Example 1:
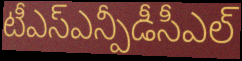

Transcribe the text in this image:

టీఎస్ఎన్పీడీసీఎల్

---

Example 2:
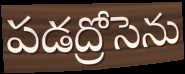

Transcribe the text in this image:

పడద్రోసెను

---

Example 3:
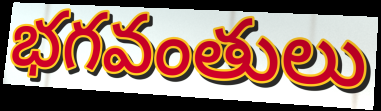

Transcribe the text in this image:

భగవంతులు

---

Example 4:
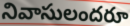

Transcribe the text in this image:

నివాసులందరూ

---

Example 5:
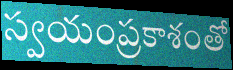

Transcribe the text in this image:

స్వయంప్రకాశంతో